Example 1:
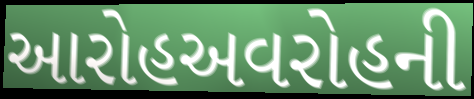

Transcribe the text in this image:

આરોહઅવરોહની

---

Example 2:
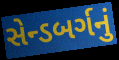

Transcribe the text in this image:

સેન્ડબર્ગનું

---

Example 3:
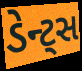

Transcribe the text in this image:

ડેન્ટ્સ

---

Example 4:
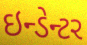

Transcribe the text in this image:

ઇન્ડેન્ટર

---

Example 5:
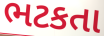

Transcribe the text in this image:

ભટકતા